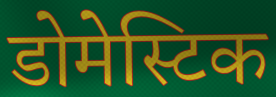
डोमेस्टिक